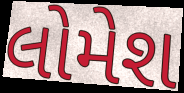
લોમેશ